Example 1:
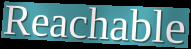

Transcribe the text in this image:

Reachable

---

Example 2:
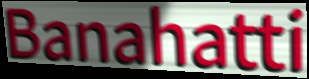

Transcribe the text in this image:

Banahatti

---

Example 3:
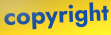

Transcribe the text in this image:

copyright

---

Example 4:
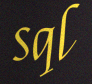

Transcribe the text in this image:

sql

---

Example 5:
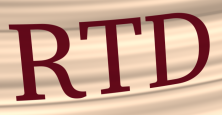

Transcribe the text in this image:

RTD